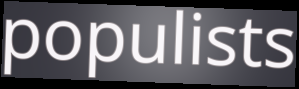
populists